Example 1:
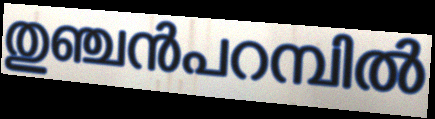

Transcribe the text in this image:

തുഞ്ചൻപറമ്പിൽ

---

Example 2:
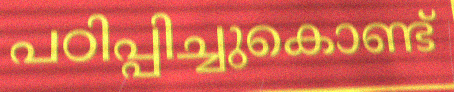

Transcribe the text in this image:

പഠിപ്പിച്ചുകൊണ്ട്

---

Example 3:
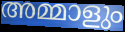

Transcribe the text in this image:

അമ്മാളും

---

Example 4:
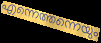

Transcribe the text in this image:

എന്നെത്തന്നെയും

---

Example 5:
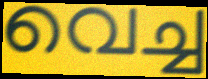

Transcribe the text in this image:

വെച്ച